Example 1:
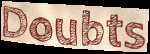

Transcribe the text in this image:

Doubts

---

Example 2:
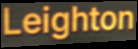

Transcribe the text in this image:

Leighton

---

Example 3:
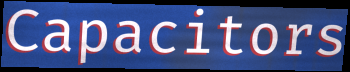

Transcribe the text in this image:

Capacitors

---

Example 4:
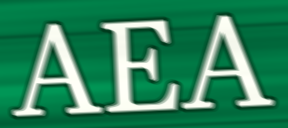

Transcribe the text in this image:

AEA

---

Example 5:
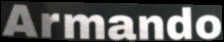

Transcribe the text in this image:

Armando